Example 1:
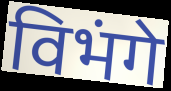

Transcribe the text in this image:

विभंगे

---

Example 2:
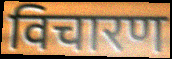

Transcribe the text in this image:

विचारण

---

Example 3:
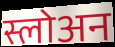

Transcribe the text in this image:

स्लोअन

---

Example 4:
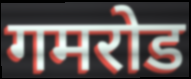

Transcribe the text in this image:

गमरोड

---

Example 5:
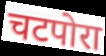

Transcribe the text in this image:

चटपोरा